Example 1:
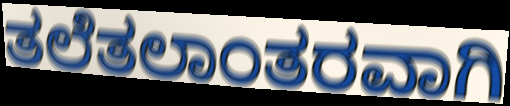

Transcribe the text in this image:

ತಲೆತಲಾಂತರವಾಗಿ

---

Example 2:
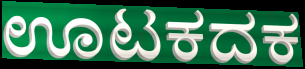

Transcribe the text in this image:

ಊಟಕದಕ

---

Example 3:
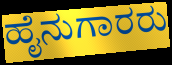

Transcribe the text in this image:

ಹೈನುಗಾರರು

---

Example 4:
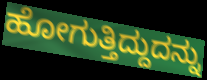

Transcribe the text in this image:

ಹೋಗುತ್ತಿದ್ದುದನ್ನು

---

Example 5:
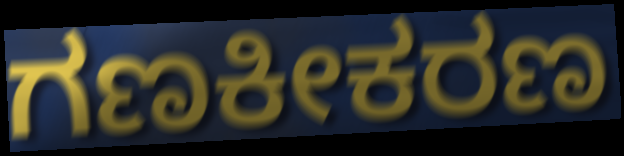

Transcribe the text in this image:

ಗಣಕೀಕರಣ